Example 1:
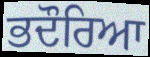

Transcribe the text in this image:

ਭਦੌਰਿਆ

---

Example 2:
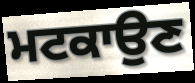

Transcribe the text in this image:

ਮਟਕਾਉਣ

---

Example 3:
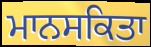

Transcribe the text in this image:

ਮਾਨਸਕਿਤਾ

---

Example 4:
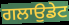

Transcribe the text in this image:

ਗਲਾਉਡੇਟ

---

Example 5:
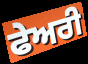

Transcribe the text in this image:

ਫੇਅਰੀ